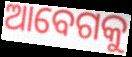
ଆବେଗକୁ